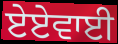
ਏਏਵਾਈ